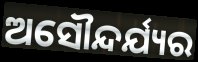
ଅସୌନ୍ଦର୍ଯ୍ୟର